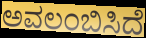
ಅವಲಂಬಿಸಿದೆ